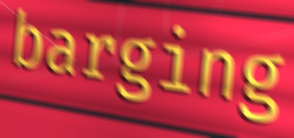
barging